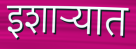
इशाऱ्यात